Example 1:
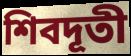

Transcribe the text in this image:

শিবদূতী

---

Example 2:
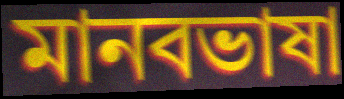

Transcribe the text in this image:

মানবভাষা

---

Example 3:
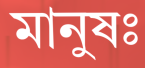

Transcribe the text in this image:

মানুষঃ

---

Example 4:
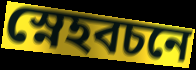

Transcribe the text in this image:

স্নেহবচনে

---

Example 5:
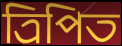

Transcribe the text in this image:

ত্রিপিত